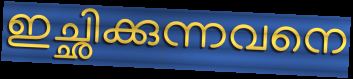
ഇച്ഛിക്കുന്നവനെ